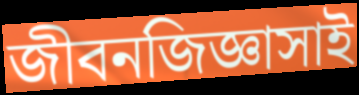
জীবনজিজ্ঞাসাই